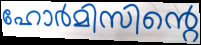
ഹോർമിസിന്റെ